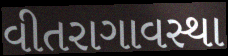
વીતરાગાવસ્થા